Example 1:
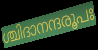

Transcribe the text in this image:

ശ്ചിദാനന്ദരൂപഃ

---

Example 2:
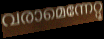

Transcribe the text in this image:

വരാമെന്നേറ്റു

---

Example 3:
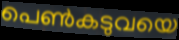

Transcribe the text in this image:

പെൺകടുവയെ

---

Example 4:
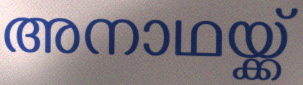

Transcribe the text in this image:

അനാഥയ്ക്ക്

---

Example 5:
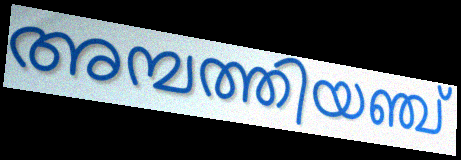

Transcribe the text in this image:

അമ്പത്തിയഞ്ച്